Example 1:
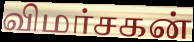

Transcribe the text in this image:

விமர்சகன்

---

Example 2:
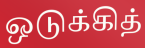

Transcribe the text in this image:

ஒடுக்கித்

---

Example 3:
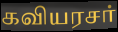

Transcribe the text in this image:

கவியரசர்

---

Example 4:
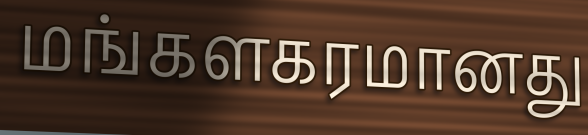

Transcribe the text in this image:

மங்களகரமானது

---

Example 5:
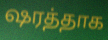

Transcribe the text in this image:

ஷரத்தாக